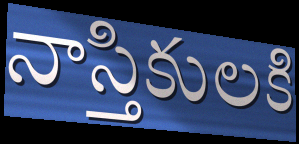
నాస్తికులకి